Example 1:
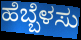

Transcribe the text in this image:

ಹೆಬ್ಬೆಳಸು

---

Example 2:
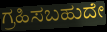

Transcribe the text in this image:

ಗ್ರಹಿಸಬಹುದೇ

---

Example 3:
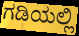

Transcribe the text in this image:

ಗಡಿಯಲ್ಲಿ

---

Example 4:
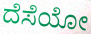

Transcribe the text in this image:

ದೆಸೆಯೋ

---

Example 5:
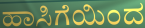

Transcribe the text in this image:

ಹಾಸಿಗೆಯಿಂದ